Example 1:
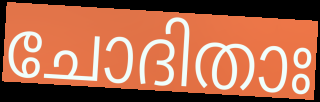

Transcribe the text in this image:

ചോദിതാഃ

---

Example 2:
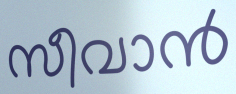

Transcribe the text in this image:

സീവാൻ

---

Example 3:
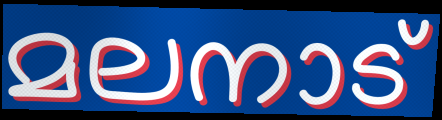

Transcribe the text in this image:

മലനാട്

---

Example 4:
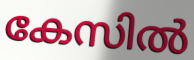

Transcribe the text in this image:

കേസിൽ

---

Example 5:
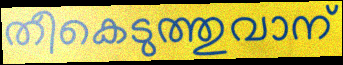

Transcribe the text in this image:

തീകെടുത്തുവാന്